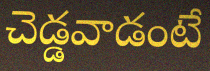
చెడ్డవాడంటే